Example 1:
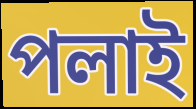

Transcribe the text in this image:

পলাই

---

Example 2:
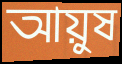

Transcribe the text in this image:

আয়ুষ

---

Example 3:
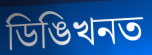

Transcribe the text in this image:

ডিঙিখনত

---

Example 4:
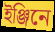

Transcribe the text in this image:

ইঞ্জিনে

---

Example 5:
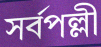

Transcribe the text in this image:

সৰ্বপল্লী